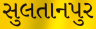
સુલતાનપુર